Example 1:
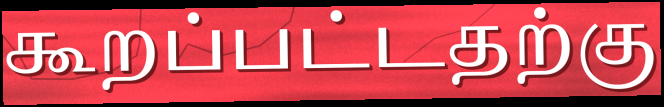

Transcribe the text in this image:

கூறப்பட்டதற்கு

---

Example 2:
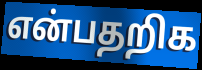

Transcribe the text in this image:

என்பதறிக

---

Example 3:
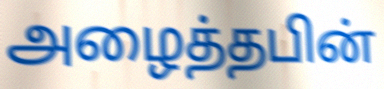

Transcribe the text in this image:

அழைத்தபின்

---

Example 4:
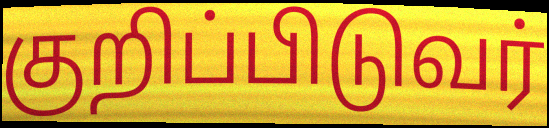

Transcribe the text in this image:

குறிப்பிடுவர்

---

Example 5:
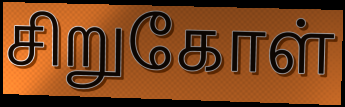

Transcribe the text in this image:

சிறுகோள்